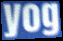
yog